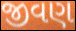
જીવણ